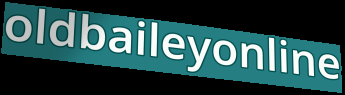
oldbaileyonline